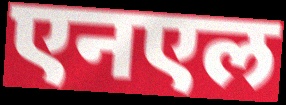
एनएल